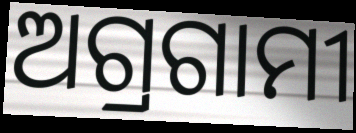
ଅଗ୍ରଗାମୀ